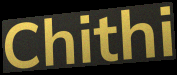
Chithi